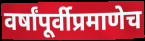
वर्षांपूर्वीप्रमाणेच